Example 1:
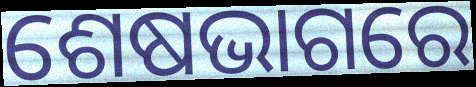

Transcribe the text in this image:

ଶେଷଭାଗରେ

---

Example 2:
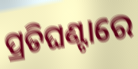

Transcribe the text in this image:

ପ୍ରତିଘଣ୍ଟାରେ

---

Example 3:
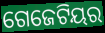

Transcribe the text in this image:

ଗେଜେଟିୟର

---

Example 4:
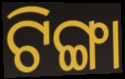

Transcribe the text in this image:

ଟିଙ୍ଗା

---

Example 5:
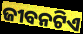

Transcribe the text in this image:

ଜୀବନଟିଏ